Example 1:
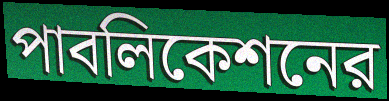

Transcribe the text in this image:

পাবলিকেশনের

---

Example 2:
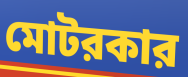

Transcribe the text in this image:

মোটরকার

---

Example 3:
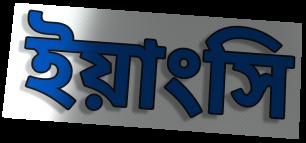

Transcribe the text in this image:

ইয়াংসি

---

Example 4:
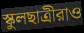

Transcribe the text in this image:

স্কুলছাত্রীরাও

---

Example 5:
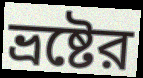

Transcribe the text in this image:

ভ্রষ্টের